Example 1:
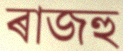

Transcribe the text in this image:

ৰাজহু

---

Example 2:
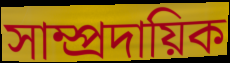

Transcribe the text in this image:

সাম্প্ৰদায়িক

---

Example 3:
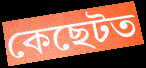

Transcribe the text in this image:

কেছেটত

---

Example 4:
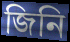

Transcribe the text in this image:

জিনি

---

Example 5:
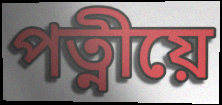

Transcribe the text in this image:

পত্নীয়ে